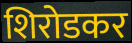
शिरोडकर